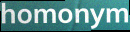
homonym